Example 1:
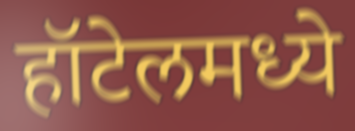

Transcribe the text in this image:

हॉटेलमध्ये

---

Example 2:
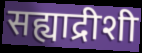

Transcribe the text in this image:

सह्याद्रीशी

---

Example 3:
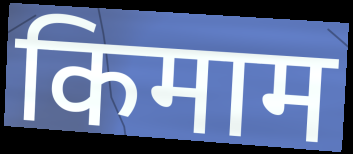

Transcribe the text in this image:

किमाम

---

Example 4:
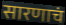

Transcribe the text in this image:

सारणाचं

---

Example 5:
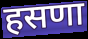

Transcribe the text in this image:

हसणा